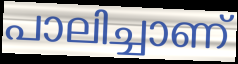
പാലിച്ചാണ്